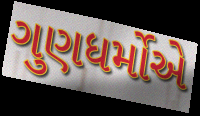
ગુણધર્મોએ